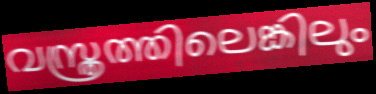
വസ്ത്രത്തിലെങ്കിലും